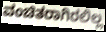
ವಂಚಿತರಾಗಿರಲಿಲ್ಲ